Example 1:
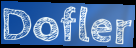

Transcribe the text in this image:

Dofler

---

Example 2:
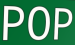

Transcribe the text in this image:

POP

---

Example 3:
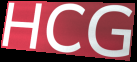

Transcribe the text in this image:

HCG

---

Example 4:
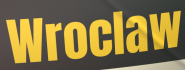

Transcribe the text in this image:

Wroclaw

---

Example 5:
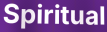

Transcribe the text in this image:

Spiritual